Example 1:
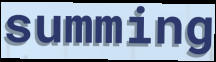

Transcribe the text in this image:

summing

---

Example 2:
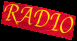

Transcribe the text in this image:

RADIO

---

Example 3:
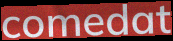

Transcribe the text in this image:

comedat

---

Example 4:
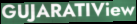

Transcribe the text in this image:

GUJARATIView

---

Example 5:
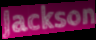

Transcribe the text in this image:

Jackson